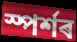
স্পৰ্শৰ